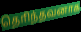
தெரிந்தவனாக